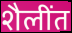
शैलींत